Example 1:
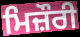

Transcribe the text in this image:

ਮਿਜ਼ੌਰੀ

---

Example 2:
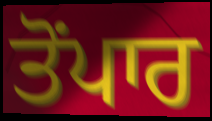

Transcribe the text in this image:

ਤੋਂਪਾਰ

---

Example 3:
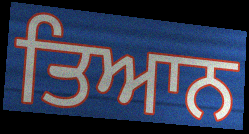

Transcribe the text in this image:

ਤਿਆਨ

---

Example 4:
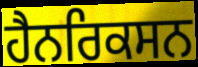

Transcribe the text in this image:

ਹੈਨਰਿਕਸਨ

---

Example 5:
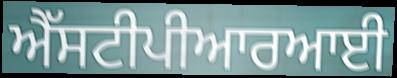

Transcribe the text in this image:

ਐੱਸਟੀਪੀਆਰਆਈ